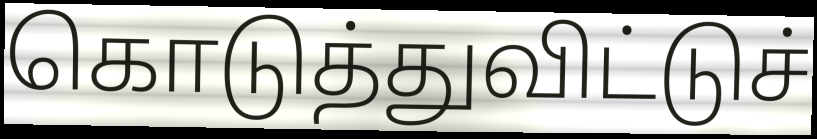
கொடுத்துவிட்டுச்